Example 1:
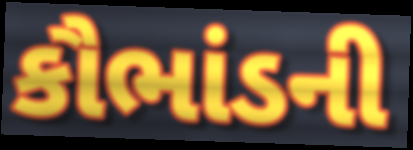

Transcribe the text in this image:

કૌભાંડની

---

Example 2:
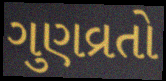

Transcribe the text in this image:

ગુણવ્રતો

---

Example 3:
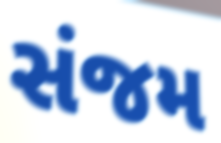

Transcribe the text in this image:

સંજમ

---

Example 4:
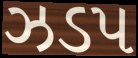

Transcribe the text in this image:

ઝડપ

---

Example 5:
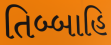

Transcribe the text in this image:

તિબ્બાહિ